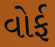
વોર્ફ